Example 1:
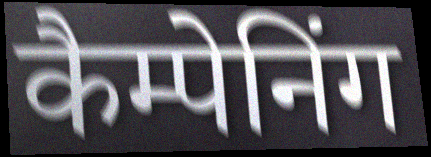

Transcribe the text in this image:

कैम्पेनिंग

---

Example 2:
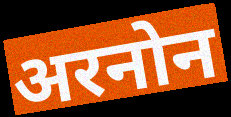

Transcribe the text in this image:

अरनोन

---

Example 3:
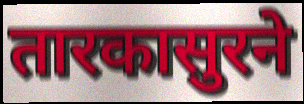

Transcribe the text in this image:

तारकासुरने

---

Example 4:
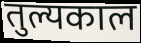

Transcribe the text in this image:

तुल्यकाल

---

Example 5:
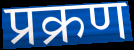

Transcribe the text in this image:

प्रक्रण